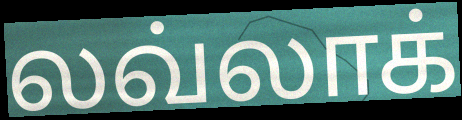
லவ்லாக்